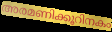
അരമണിക്കൂറിനകം